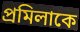
প্রমিলাকে